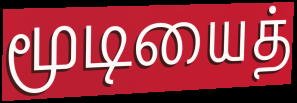
மூடியைத்